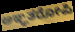
ಅಞ್ಞತರೋಪಿ